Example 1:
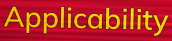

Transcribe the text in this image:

Applicability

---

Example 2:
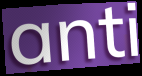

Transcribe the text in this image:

anti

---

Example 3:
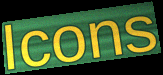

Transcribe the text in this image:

Icons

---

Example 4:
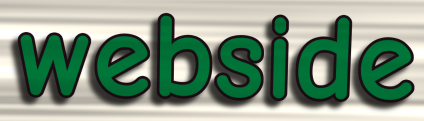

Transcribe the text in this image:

webside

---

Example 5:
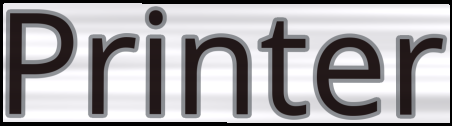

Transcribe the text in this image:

Printer